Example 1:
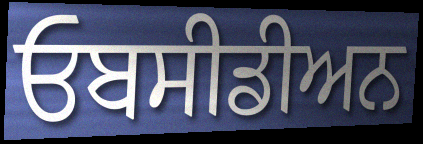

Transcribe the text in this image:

ਓਬਸੀਡੀਅਨ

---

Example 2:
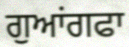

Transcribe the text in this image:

ਗੁਆਂਗਫਾ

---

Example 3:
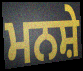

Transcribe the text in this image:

ਮਨਸ਼ੇ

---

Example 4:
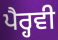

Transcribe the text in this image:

ਪੈਰ੍ਹਵੀ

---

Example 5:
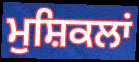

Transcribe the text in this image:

ਮੁਸ਼ਿਕਲਾਂ